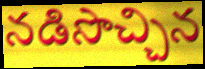
నడిసొచ్చిన